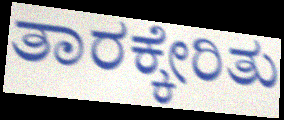
ತಾರಕ್ಕೇರಿತು